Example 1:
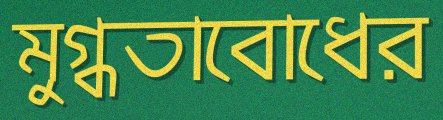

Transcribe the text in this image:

মুগ্ধতাবোধের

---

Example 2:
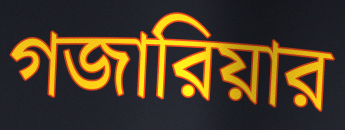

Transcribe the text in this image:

গজারিয়ার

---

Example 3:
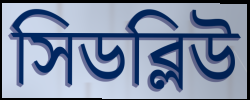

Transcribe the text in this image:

সিডব্লিউ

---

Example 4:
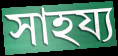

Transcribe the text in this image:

সাহয্য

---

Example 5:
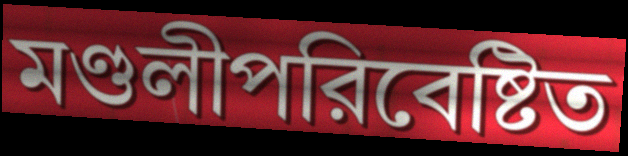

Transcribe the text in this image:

মণ্ডলীপরিবেষ্টিত